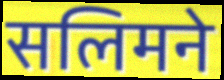
सलिमने